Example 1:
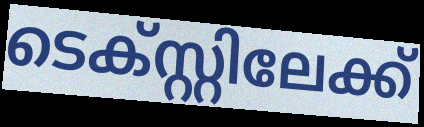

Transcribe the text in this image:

ടെക്സ്റ്റിലേക്ക്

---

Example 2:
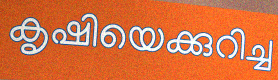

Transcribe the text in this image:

കൃഷിയെക്കുറിച്ച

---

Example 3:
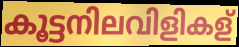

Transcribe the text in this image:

കൂട്ടനിലവിളികള്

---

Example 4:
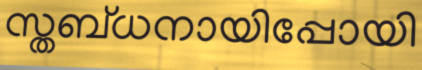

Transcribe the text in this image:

സ്തബ്ധനായിപ്പോയി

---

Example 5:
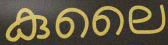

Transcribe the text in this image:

കുലൈ